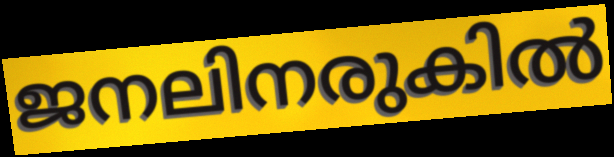
ജനലിനരുകിൽ